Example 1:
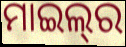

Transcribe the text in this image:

ମାଇଲ୍‍ର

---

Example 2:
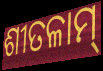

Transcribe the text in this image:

ଶୀତଳାମ୍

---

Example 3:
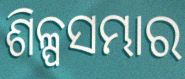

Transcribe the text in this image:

ଶିଳ୍ପସମ୍ଭାର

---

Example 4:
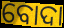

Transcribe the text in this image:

ବୋଦା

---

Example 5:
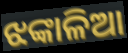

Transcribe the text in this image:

ଝଙ୍କାଳିଆ